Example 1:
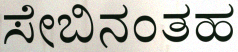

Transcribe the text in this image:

ಸೇಬಿನಂತಹ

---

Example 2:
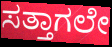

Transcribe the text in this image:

ಸತ್ತಾಗಲೇ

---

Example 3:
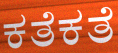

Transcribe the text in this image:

ಕತೆಕತೆ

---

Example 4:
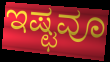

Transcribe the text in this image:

ಇಷ್ಟವೂ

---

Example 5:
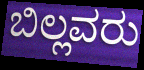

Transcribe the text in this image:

ಬಿಲ್ಲವರು